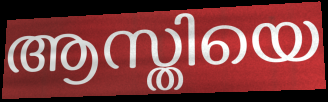
ആസ്തിയെ